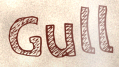
Gull